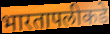
भारतापलीकडे